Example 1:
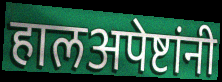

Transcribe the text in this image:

हालअपेष्टांनी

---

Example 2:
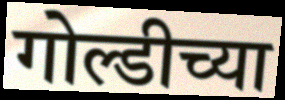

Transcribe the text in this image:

गोल्डीच्या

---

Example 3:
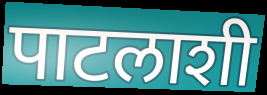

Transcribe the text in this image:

पाटलाशी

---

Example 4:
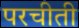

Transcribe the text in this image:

परचीती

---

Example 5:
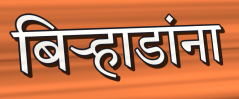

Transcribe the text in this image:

बिऱ्हाडांना